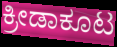
ಕ್ರೀಡಾಕೂಟ